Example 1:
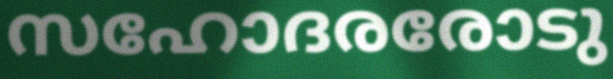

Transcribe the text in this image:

സഹോദരരോടു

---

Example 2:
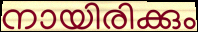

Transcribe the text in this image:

നായിരിക്കും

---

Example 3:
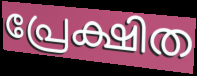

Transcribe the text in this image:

പ്രേക്ഷിത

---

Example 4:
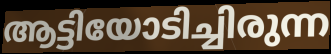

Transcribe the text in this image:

ആട്ടിയോടിച്ചിരുന്ന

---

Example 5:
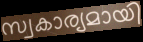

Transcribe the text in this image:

സ്വകാര്യമായി